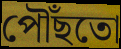
পৌঁছতো